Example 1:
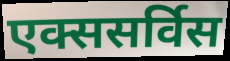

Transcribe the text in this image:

एक्ससर्विस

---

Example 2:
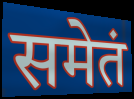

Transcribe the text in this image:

समेतं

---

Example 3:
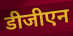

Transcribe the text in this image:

डीजीएन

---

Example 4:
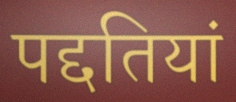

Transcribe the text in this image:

पद्दतियां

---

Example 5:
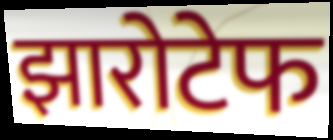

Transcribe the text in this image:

झारोटेफ